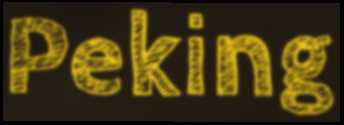
Peking